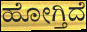
ಹೋಗ್ತಿದೆ